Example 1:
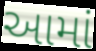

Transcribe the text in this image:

આમાં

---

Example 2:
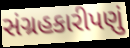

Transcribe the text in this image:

સંગ્રહકારીપણું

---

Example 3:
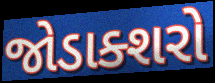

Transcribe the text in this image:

જોડાક્શરો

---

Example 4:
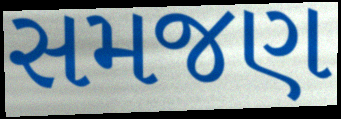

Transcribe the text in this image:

સમજણ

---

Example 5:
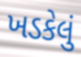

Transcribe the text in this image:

ખડકેલું